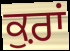
ਕ਼ੁਰਾਂ